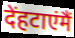
देंहटाएंमैं